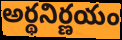
అర్థనిర్ణయం